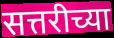
सत्तरीच्या